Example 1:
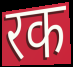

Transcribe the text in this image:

रक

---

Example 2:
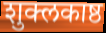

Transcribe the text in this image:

शुक्लकाष्ठ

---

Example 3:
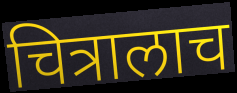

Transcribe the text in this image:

चित्रालाच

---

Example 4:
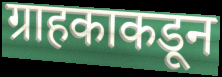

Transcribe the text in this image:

ग्राहकाकडून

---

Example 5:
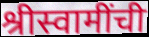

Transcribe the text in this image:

श्रीस्वामींची